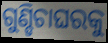
ଗୁଣ୍ଡିଚାଘରକୁ